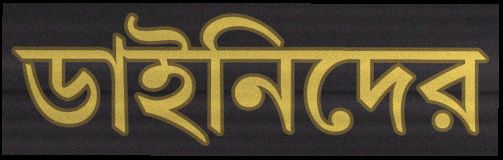
ডাইনিদের